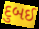
દુબઈ